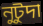
নুটুদা